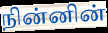
நின்னின்